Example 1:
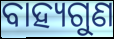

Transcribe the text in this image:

ବାହ୍ୟଗୁଣ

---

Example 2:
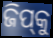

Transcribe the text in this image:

ଜିପ୍‌କୁ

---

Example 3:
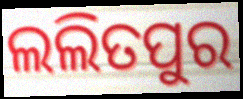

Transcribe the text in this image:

ଲଲିତପୁର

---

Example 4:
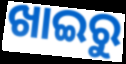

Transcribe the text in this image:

ଖାଇରୁ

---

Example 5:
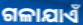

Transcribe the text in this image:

ଗଳାଯାଏଁ